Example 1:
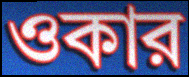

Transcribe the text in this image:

ওকার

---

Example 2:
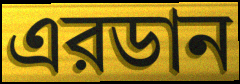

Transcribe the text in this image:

এরডান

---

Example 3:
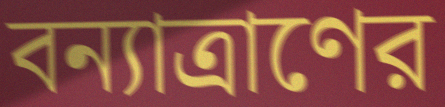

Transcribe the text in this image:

বন্যাত্রাণের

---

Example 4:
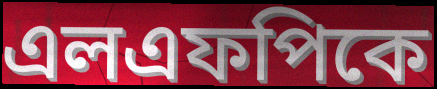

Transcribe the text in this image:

এলএফপিকে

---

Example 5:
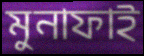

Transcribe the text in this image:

মুনাফাই